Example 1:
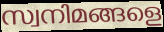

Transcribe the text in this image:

സ്വനിമങ്ങളെ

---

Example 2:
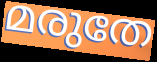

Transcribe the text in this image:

മരുതേ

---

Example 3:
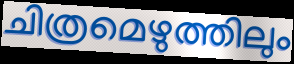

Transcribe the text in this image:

ചിത്രമെഴുത്തിലും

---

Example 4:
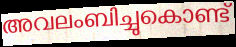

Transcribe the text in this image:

അവലംബിച്ചുകൊണ്ട്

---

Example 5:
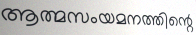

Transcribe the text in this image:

ആത്മസംയമനത്തിന്റെ